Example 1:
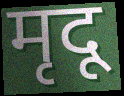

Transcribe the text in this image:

मृदू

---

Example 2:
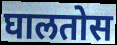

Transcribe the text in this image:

घालतोस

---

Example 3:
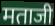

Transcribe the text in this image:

मताजी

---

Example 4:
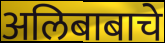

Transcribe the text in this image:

अलिबाबाचे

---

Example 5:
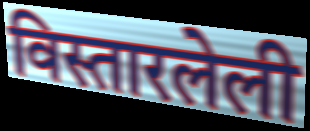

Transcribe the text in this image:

विस्तारलेली